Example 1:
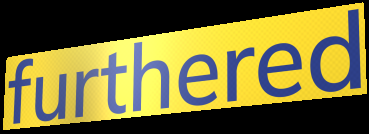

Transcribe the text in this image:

furthered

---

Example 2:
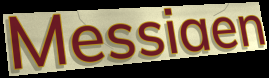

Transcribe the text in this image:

Messiaen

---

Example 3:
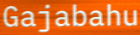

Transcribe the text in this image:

Gajabahu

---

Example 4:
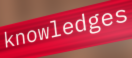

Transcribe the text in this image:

knowledges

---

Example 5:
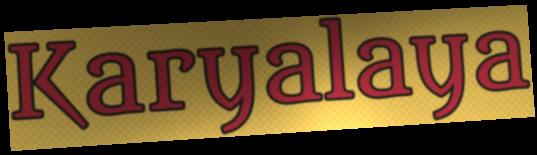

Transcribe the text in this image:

Karyalaya